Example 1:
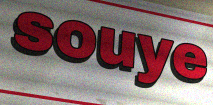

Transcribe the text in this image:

souye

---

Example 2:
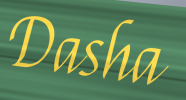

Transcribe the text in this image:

Dasha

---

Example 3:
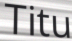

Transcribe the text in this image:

Titu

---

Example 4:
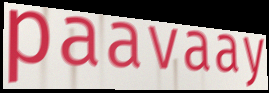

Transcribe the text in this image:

paavaay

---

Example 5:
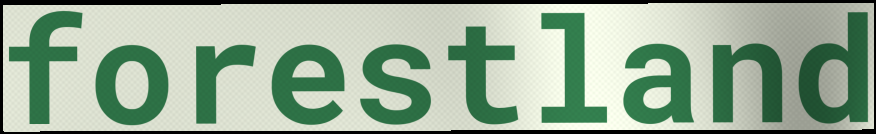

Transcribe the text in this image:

forestland